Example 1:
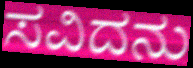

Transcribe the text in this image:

ಸವಿದನು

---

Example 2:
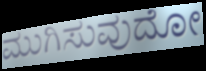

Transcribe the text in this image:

ಮುಗಿಸುವುದೋ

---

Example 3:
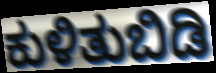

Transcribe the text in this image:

ಕುಳಿತುಬಿಡಿ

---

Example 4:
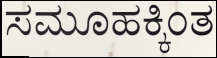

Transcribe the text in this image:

ಸಮೂಹಕ್ಕಿಂತ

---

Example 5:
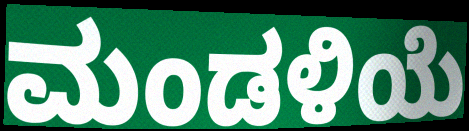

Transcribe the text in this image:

ಮಂಡಳಿಯೆ